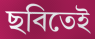
ছবিতেই